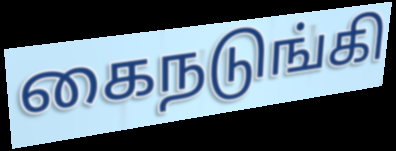
கைநடுங்கி